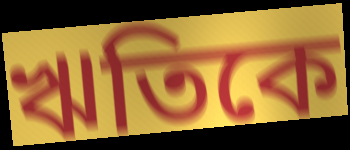
ঋতিকে